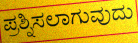
ಪ್ರಶ್ನಿಸಲಾಗುವುದು